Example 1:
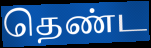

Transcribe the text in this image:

தெண்ட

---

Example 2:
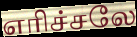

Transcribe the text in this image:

எரிச்சலே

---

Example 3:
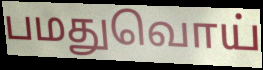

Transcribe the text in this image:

பமதுவொய்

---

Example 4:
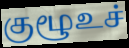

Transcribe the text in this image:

குழூஉச்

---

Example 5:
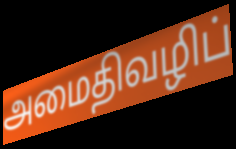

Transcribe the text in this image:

அமைதிவழிப்